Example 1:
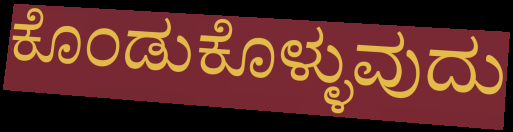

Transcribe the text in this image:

ಕೊಂಡುಕೊಳ್ಳುವುದು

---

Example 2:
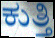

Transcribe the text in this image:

ಕುತ್ತಿ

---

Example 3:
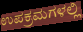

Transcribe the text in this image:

ಉಪಕ್ರಮಗಳಲ್ಲಿ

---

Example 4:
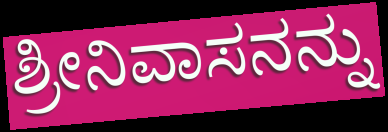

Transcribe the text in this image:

ಶ್ರೀನಿವಾಸನನ್ನು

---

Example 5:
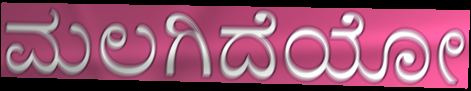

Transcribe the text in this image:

ಮಲಗಿದೆಯೋ